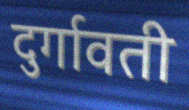
दुर्गावती